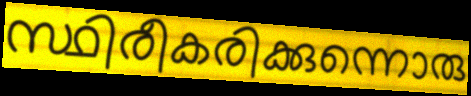
സ്ഥിരീകരിക്കുന്നൊരു